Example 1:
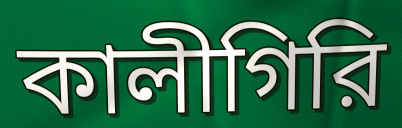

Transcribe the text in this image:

কালীগিরি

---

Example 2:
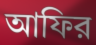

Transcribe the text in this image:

আফির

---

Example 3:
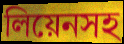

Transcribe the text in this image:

লিয়েনসহ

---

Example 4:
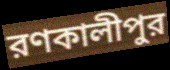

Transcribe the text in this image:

রণকালীপুর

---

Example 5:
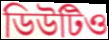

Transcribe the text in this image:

ডিউটিও